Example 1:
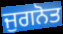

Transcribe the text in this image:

ਜੁਗਨੋਤ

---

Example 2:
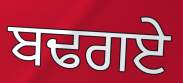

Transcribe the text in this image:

ਬਢਗਏ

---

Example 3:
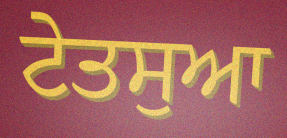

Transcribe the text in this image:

ਟੇਤਸੁਆ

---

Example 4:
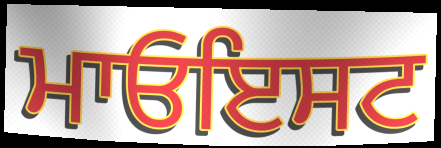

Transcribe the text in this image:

ਮਾਓਇਸਟ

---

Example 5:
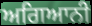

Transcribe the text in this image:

ਅਗਿਆਨੀ